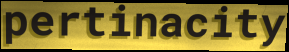
pertinacity